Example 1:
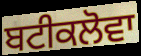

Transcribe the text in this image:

ਬਟੀਕਲੋਵਾ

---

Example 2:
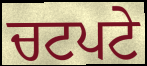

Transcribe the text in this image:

ਚਟਪਟੇ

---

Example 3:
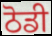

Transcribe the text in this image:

ਠੋਡੀ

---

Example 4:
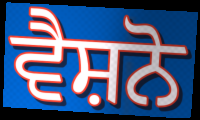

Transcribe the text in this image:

ਵੈਸ਼ਨੋ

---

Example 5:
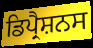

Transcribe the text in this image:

ਡਿਪ੍ਰੈਸ਼ਨਸ